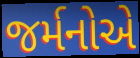
જર્મનોએ